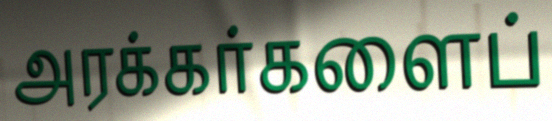
அரக்கர்களைப்